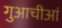
गुआचीआं